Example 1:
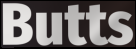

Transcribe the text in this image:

Butts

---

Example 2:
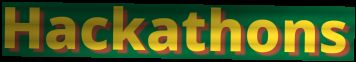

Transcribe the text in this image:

Hackathons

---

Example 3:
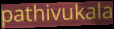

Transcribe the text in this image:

pathivukala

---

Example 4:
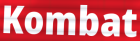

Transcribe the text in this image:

Kombat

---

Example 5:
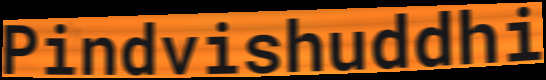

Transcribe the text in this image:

Pindvishuddhi